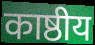
काष्ठीय